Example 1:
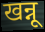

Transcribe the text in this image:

खन्नू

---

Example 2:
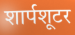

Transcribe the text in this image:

शार्पशूटर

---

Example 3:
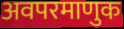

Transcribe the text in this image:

अवपरमाणुक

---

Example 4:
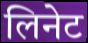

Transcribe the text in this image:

लिनेट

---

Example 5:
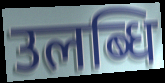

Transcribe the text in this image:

उलब्धि